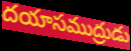
దయాసముద్రుడు